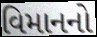
વિમાનનો